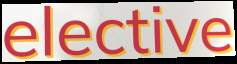
elective